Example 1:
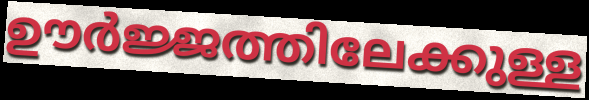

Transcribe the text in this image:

ഊർജ്ജത്തിലേക്കുള്ള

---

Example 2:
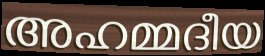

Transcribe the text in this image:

അഹമ്മദീയ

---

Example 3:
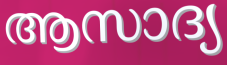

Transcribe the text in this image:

ആസാദ്യ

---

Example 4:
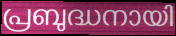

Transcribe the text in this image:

പ്രബുദ്ധനായി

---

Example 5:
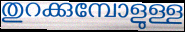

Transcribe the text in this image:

തുറക്കുമ്പോളുള്ള